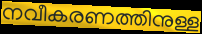
നവീകരണത്തിനുള്ള